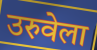
उरुवेला